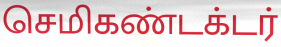
செமிகண்டக்டர்